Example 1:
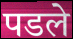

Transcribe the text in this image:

पडले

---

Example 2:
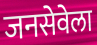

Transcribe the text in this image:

जनसेवेला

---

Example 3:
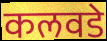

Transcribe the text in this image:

कलवडे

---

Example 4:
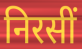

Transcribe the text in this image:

निरसीं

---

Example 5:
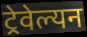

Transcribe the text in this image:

ट्रेवेल्यन